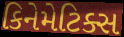
કિનેમેટિક્સ